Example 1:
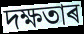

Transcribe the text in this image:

দক্ষতাৰ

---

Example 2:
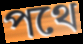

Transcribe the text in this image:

পথে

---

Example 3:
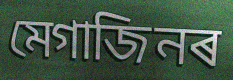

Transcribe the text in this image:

মেগাজিনৰ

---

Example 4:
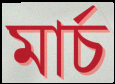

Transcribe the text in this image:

মাৰ্চ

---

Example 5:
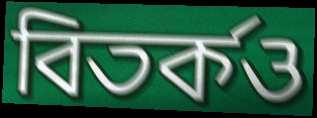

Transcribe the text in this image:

বিতৰ্কও